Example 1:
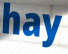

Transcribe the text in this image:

hay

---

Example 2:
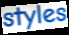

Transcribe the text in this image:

styles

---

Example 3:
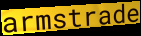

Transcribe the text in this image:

armstrade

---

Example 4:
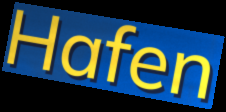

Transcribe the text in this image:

Hafen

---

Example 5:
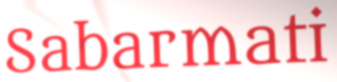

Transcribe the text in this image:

Sabarmati